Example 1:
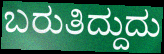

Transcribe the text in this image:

ಬರುತಿದ್ದುದು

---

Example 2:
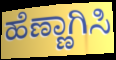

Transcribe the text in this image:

ಹೆಣ್ಣಾಗಿಸಿ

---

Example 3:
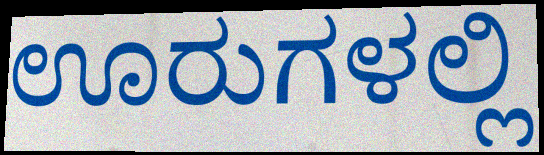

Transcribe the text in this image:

ಊರುಗಳಲ್ಲಿ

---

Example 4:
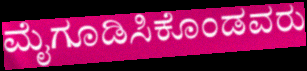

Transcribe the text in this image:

ಮೈಗೂಡಿಸಿಕೊಂಡವರು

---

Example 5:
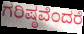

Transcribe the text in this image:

ಗರಿಷ್ಠವೆಂದರೆ